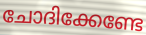
ചോദിക്കേണ്ടേ